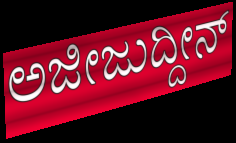
ಅಜೀಜುದ್ದೀನ್